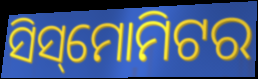
ସିସ୍‌ମୋମିଟର